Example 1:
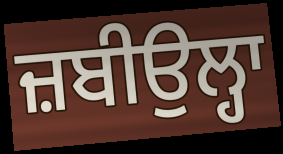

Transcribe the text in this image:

ਜ਼ਬੀਉਲ੍ਹਾ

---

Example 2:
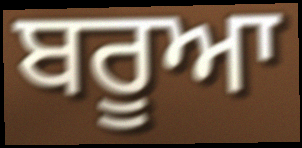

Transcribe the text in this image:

ਬਰੂਆ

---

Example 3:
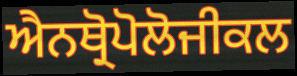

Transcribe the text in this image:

ਐਨਥ੍ਰੋਪੋਲੋਜੀਕਲ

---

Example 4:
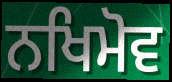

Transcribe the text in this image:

ਨਖਿਮੋਵ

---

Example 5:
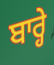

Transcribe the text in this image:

ਬਾਰ੍ਹੇ